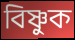
বিষ্ণুক